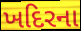
ખદિરના